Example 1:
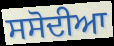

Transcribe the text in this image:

ਸਸੋਦੀਆ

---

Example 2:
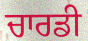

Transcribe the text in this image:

ਚਾਰਡੀ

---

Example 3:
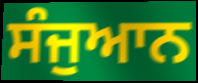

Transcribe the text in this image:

ਸੰਜੁਆਨ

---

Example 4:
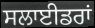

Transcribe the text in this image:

ਸਲਾਈਡਰਾਂ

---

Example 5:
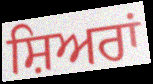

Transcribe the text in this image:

ਸ਼ਿਅਰਾਂ